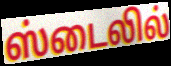
ஸ்டைலில்